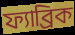
ফ্যাব্রিক